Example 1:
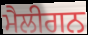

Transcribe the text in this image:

ਮੈਲੀਗਨ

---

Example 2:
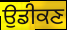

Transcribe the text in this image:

ਉਡੀਕਣ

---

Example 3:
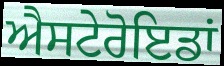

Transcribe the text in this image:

ਐਸਟੇਰੋਇਡਾਂ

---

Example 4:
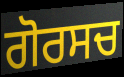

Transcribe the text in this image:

ਗੋਰਸਚ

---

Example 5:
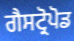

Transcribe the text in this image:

ਗੈਸਟ੍ਰੋਪੋਡ